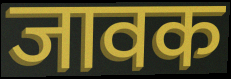
जावक